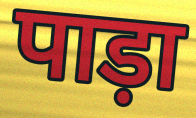
पाड़ा